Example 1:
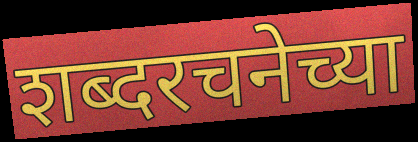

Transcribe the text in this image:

शब्दरचनेच्या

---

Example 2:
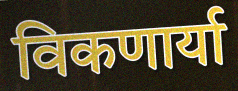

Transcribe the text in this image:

विकणार्या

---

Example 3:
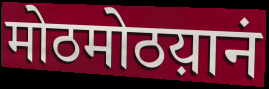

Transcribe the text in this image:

मोठमोठय़ानं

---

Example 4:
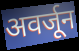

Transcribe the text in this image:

अवर्जून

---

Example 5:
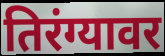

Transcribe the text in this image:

तिरंग्यावर